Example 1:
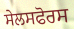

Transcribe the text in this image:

ਸੇਲਸਫੋਰਸ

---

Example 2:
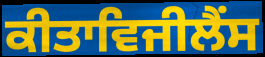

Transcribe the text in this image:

ਕੀਤਾਵਿਜੀਲੈਂਸ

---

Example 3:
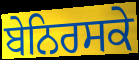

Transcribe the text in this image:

ਬੇਨਿਰਸਕੇ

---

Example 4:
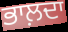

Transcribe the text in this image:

ਭਾਲ਼ਦਾ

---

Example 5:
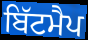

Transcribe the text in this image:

ਬਿੱਟਮੈਪ